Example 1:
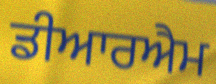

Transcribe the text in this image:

ਡੀਆਰਐਮ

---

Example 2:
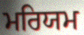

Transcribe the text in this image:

ਮਰਿਯਮ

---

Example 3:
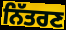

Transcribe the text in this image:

ਨਿੱਤਰਣ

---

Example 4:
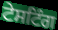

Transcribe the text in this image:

ਟੇਸਟਿੰਗ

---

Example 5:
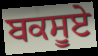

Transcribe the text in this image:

ਬਕਸੂਏ